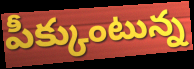
పీక్కుంటున్న